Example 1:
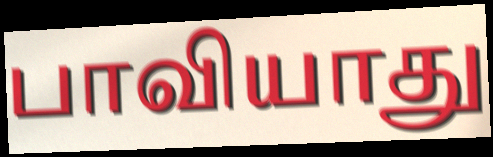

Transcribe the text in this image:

பாவியாது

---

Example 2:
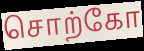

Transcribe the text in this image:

சொற்கோ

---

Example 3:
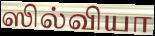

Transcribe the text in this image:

ஸில்வியா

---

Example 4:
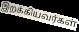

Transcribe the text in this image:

இறக்கியவர்கள்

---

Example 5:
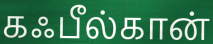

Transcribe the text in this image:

கஃபீல்கான்